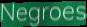
Negroes